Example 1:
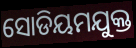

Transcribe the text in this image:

ସୋଡିୟମଯୁକ୍ତ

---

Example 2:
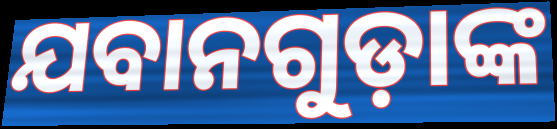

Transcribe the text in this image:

ଯବାନଗୁଡ଼ାଙ୍କ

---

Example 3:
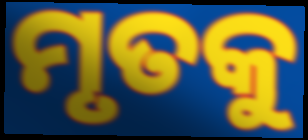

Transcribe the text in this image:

ମୃତକୁ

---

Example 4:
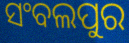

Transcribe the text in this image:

ସଂବଲପୁର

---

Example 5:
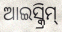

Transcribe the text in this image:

ଆଇସ୍କ୍ରିମ୍